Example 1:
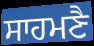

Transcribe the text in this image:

ਸਾਹਮਣੈ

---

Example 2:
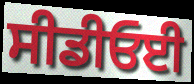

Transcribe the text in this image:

ਸੀਡੀਓਈ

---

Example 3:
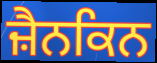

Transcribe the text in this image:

ਜ਼ੈਨਕਿਨ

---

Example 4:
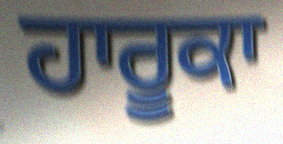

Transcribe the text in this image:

ਹਾਰੂਕਾ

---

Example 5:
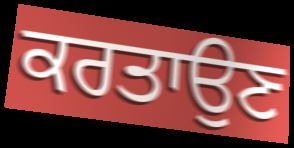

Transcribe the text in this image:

ਕਰਤਾਉਣ